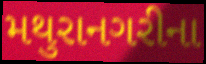
મથુરાનગરીના